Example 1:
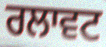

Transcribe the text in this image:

ਰਲਾਵਟ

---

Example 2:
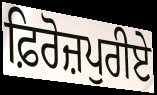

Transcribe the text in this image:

ਫ਼ਿਰੋਜ਼ਪੁਰੀਏ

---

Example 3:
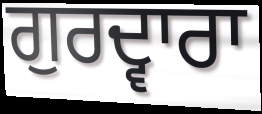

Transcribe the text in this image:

ਗੁਰਦ੍ਵਾਰਾ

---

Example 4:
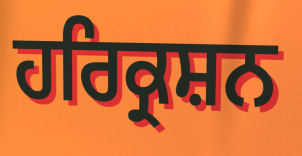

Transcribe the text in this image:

ਹਰਿਕ੍ਰਸ਼ਨ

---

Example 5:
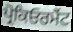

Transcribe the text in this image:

ਪ੍ਰੋਕਿਓਰਮੈਂਟ